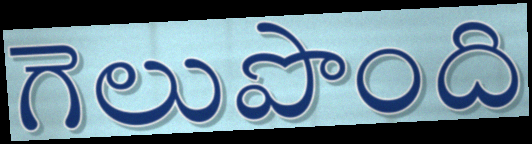
గెలుపొంది